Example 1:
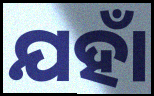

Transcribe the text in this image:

ଯହାଁ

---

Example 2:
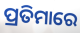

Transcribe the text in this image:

ପ୍ରତିମାରେ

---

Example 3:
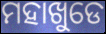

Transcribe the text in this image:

ମହାଖୁଡେ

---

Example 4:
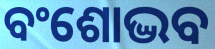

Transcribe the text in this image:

ବଂଶୋଦ୍ଭବ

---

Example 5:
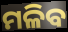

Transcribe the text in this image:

ମଳିବ